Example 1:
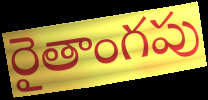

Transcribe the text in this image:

రైతాంగపు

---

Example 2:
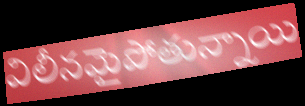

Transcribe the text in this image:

విలీనమైపోతున్నాయి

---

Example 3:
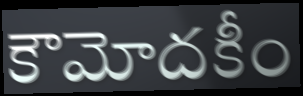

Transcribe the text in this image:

కౌమోదకీం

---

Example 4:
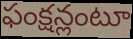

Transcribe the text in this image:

ఫంక్షన్లంటూ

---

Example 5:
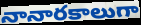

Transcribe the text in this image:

నానారకాలుగా